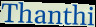
Thanthi